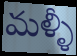
మళ్ళీ